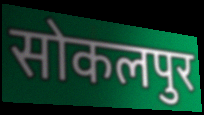
सोकलपुर